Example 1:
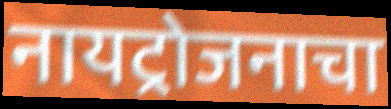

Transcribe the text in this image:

नायट्रोजनाचा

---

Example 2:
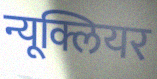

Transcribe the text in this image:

न्यूक्लियर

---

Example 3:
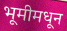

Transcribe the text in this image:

भूमीमधून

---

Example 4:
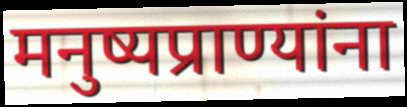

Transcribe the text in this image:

मनुष्यप्राण्यांना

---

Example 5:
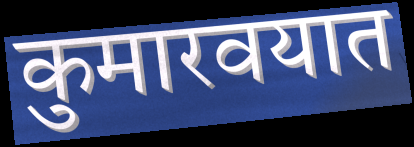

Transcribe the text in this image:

कुमारवयात